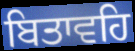
ਬਿਤਾਵਹਿ